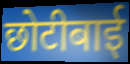
छोटीबाई